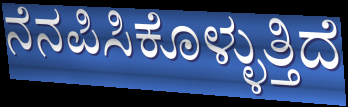
ನೆನಪಿಸಿಕೊಳ್ಳುತ್ತಿದೆ